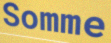
Somme